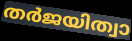
തർജയിത്വാ